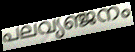
പലവ്യഞ്ജനം